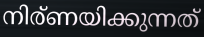
നിര്ണയിക്കുന്നത്